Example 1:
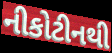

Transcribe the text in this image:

નીકોટીનથી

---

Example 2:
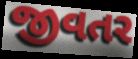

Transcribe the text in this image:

જીવતર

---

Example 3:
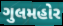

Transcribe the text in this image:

ગુલમહોર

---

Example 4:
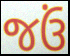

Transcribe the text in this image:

જઉં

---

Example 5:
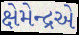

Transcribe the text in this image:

ક્ષેમેન્દ્રએ